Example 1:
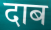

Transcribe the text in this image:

दाब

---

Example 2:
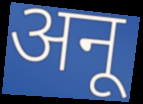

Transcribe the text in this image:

अनू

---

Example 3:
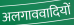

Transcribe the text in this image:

अलगाववादियों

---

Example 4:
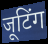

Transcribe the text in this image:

जूटिंग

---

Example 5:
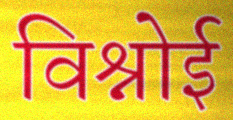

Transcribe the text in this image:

विश्नोई